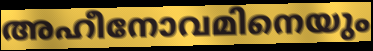
അഹീനോവമിനെയും